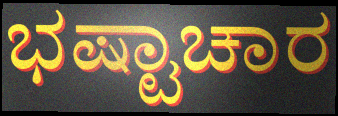
ಭಷ್ಟಾಚಾರ